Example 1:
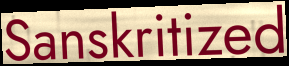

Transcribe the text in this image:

Sanskritized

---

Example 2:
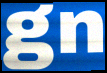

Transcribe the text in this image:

gn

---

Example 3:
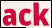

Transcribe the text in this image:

ack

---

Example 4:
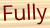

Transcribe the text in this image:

Fully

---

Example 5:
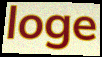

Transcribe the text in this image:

loge